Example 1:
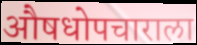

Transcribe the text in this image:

औषधोपचाराला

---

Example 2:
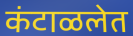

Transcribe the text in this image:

कंटाळलेत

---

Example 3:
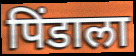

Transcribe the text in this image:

पिंडाला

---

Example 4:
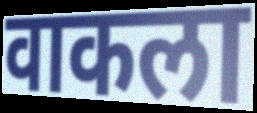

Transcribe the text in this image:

वाकला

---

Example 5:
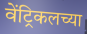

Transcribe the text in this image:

वेंट्रिकलच्या